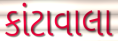
કાંટાવાલા